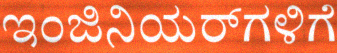
ಇಂಜಿನಿಯರ್‌ಗಳಿಗೆ